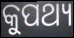
କୁପଥ୍ୟ